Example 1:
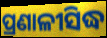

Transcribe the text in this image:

ପ୍ରଣାଳୀସିଦ୍ଧ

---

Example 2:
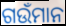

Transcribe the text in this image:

ଗଉଁମାନ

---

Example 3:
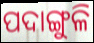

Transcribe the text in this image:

ପଦାଙ୍ଗୁଳି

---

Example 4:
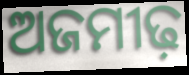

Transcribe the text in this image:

ଅଜମୀଢ଼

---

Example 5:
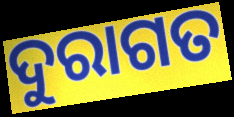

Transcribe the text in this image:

ଦୁରାଗତ